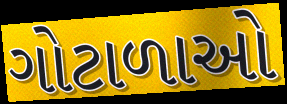
ગોટાળાઓ